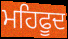
ਮਹਿਫੂਦ